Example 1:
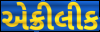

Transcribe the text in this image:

એક્રીલીક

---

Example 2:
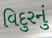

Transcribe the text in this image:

વિદુરનું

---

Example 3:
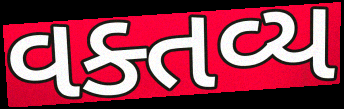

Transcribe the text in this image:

વક્તવ્ય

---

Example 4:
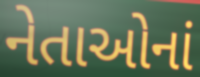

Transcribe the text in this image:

નેતાઓનાં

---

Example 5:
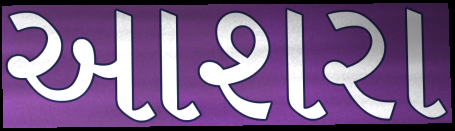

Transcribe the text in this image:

આશરા